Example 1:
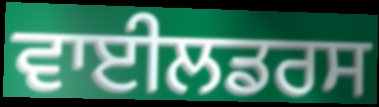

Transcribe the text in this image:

ਵਾਈਲਡਰਸ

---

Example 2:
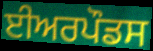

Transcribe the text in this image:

ਈਅਰਪੌਡਸ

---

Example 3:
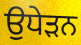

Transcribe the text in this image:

ਉਧੇੜਨ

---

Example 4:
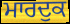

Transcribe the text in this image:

ਮਾਰਦੁਕ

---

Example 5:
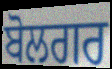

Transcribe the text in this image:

ਬੋਲਗਰ